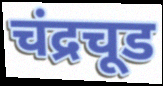
चंद्रचूड